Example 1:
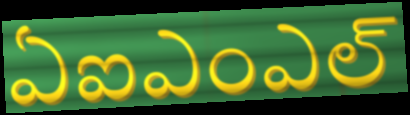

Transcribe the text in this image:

ఏఐఎంఎల్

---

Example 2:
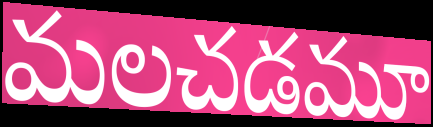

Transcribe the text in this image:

మలచడమూ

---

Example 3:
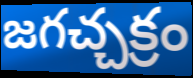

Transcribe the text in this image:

జగచ్చక్రం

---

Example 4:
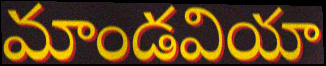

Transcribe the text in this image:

మాండవియా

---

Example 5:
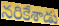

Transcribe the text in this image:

నరికేశాడు